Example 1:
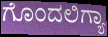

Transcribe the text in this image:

ಗೊಂದಲಿಗ್ಯಾ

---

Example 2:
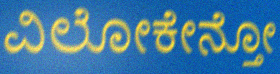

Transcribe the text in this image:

ವಿಲೋಕೇನ್ತೋ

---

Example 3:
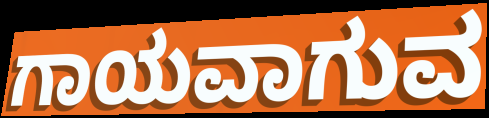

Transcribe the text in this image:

ಗಾಯವಾಗುವ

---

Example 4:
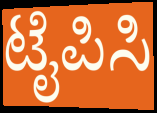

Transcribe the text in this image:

ಟೈಪಿಸಿ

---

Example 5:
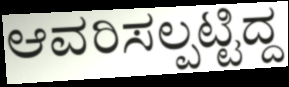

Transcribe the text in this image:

ಆವರಿಸಲ್ಪಟ್ಟಿದ್ದ